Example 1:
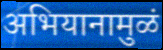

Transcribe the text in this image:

अभियानामुळं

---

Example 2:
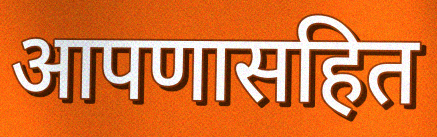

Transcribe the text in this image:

आपणासहित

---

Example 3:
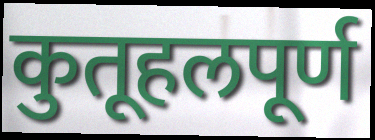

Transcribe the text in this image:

कुतूहलपूर्ण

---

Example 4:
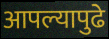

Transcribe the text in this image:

आपल्यापुढे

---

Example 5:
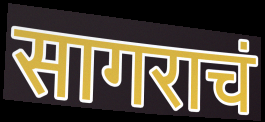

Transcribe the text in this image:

सागराचं